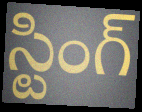
స్టింగ్